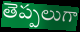
తెప్పలుగా